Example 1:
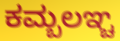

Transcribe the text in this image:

ಕಮ್ಬಲಞ್ಚ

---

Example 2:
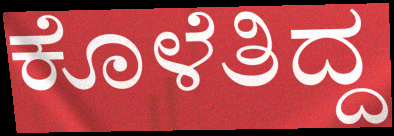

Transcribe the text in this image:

ಕೊಳೆತಿದ್ದ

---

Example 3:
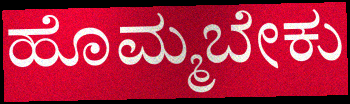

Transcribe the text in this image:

ಹೊಮ್ಮಬೇಕು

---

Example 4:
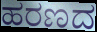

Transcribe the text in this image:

ಹರಣದ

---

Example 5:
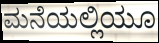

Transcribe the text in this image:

ಮನೆಯಲ್ಲಿಯೂ